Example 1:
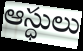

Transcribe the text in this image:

ఆస్ధులు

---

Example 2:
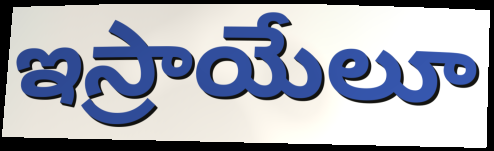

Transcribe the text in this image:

ఇస్రాయేలూ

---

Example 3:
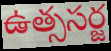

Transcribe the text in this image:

ఉత్ససర్జ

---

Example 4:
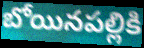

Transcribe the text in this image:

బోయినపల్లికి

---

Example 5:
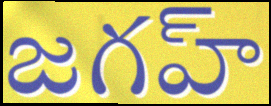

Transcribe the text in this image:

జగహ్